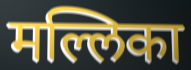
मल्लिका